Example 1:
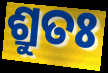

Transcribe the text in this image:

ଶ୍ରୁତଃ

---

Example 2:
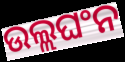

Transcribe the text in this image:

ଉଲ୍ଲଘଂନ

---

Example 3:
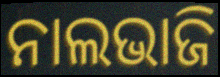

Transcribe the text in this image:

ନାଲଭାଜି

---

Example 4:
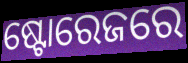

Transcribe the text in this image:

ଷ୍ଟୋରେଜରେ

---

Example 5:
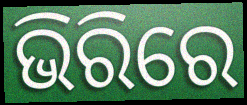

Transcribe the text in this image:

ଭିରିରେ